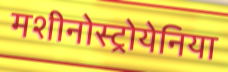
मशीनोस्ट्रोयेनिया